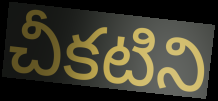
చీకటిని